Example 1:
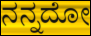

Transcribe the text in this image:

ನನ್ನದೋ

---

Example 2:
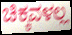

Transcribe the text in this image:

ಚಿಕ್ಕವಳಲ್ಲ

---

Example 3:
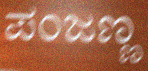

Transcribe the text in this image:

ಪಂಜಣ್ಣ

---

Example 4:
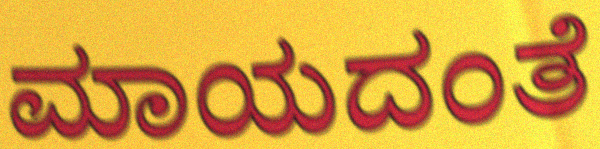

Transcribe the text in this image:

ಮಾಯದಂತೆ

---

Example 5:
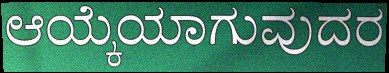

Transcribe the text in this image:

ಆಯ್ಕೆಯಾಗುವುದರ